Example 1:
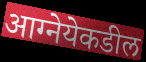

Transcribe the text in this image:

आग्नेयेकडील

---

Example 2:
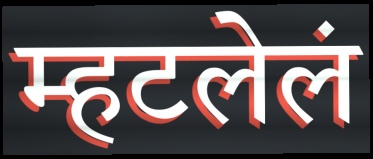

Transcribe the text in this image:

म्हटलेलं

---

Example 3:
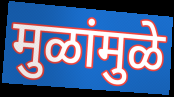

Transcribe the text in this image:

मुळांमुळे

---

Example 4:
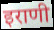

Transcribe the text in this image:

इराणी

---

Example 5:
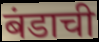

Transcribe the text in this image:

बंडाची